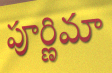
పూర్ణిమా